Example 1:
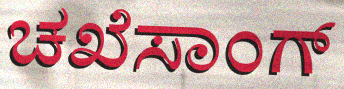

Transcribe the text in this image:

ಚಖೆಸಾಂಗ್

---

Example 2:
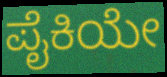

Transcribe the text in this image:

ಪೈಕಿಯೇ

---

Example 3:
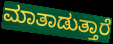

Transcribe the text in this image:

ಮಾತಾಡುತ್ತಾರೆ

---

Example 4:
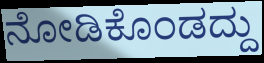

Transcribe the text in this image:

ನೋಡಿಕೊಂಡದ್ದು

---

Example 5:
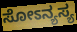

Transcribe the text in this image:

ಸೋಽನ್ಯಸ್ಯ